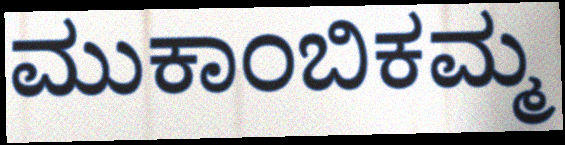
ಮುಕಾಂಬಿಕಮ್ಮ